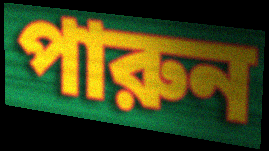
পারুন